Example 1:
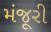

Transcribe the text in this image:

મંજૂરી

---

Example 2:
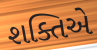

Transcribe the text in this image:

શક્તિએ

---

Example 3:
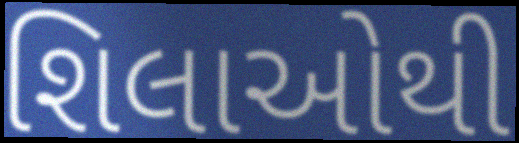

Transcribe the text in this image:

શિલાઓથી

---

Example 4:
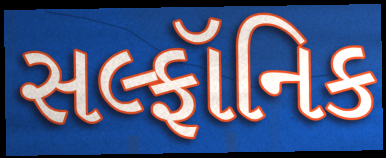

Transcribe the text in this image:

સલ્ફૉનિક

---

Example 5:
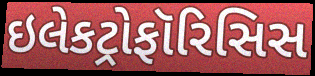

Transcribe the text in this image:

ઇલેકટ્રોફૉરિસિસ